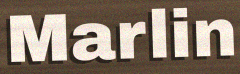
Marlin